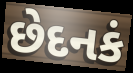
છેદનકં